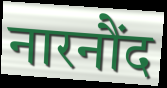
नारनौंद